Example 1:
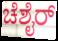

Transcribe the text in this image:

ಚೆಶೈರ್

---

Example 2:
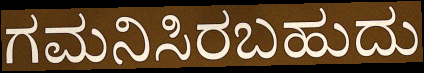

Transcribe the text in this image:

ಗಮನಿಸಿರಬಹುದು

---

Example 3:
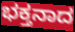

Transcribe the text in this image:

ಭಕ್ತನಾದ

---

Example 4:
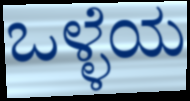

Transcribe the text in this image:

ಒಳ್ಳೆಯ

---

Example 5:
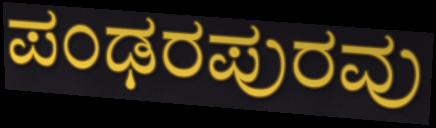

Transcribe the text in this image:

ಪಂಢರಪುರವು